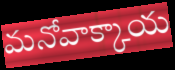
మనోవాక్కాయ